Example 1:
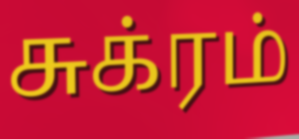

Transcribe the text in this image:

சுக்ரம்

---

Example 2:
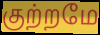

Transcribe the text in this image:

குற்றமே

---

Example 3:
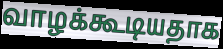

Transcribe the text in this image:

வாழக்கூடியதாக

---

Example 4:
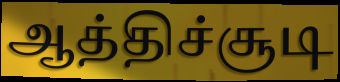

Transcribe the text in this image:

ஆத்திச்சூடி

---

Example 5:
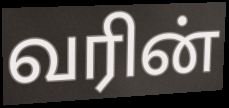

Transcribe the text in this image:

வரின்